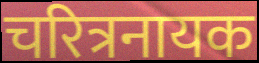
चरित्रनायक